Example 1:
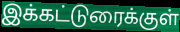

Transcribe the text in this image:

இக்கட்டுரைக்குள்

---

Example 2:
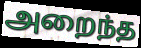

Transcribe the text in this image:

அறைந்த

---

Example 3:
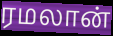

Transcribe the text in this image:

ரமலான்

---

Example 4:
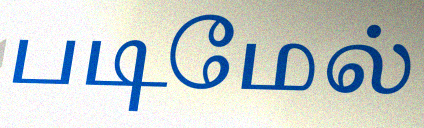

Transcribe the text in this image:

படிமேல்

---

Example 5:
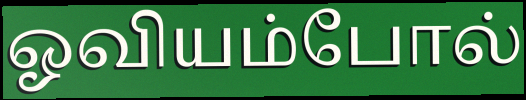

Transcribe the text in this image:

ஓவியம்போல்